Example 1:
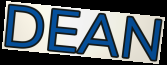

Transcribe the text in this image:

DEAN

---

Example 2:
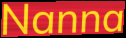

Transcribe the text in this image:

Nanna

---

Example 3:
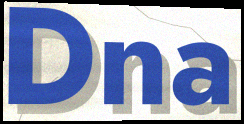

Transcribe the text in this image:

Dna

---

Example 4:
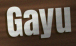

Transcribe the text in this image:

Gayu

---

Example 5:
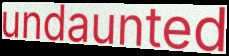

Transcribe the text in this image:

undaunted